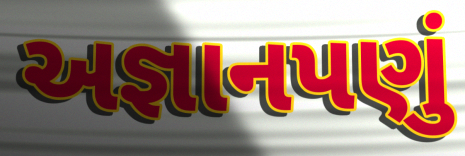
અજ્ઞાનપણું